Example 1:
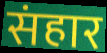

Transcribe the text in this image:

संहार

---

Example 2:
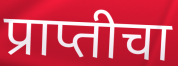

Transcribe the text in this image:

प्राप्तीचा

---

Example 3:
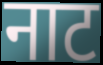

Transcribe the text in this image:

नाट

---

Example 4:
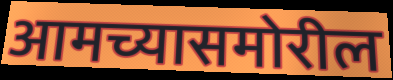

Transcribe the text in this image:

आमच्यासमोरील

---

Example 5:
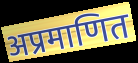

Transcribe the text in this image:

अप्रमाणित